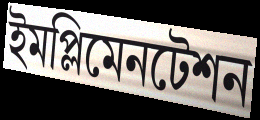
ইমপ্লিমেনটেশন